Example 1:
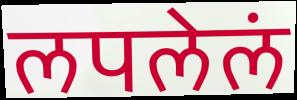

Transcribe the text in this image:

लपलेलं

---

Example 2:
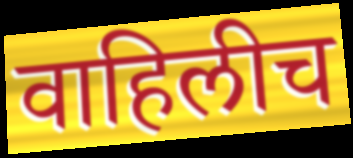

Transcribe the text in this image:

वाहिलीच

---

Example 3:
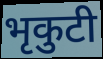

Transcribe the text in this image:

भृकुटी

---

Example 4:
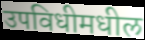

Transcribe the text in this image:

उपविधीमधील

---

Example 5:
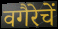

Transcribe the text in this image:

वगैरेचें